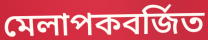
মেলাপকবর্জিত